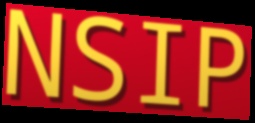
NSIP